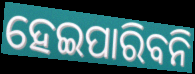
ହେଇପାରିବନି